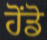
ਹੋਂਡੋ